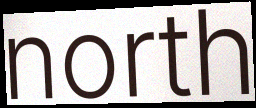
north